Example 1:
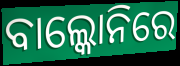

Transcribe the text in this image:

ବାଲ୍କୋନିରେ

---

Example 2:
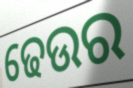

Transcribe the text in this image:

ଢେଉର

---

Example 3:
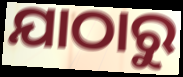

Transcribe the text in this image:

ଯାଠାରୁ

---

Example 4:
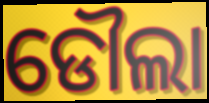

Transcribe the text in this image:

ଡୌଲା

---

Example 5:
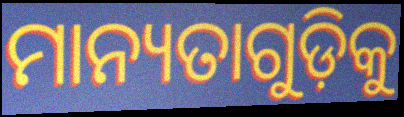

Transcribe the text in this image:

ମାନ୍ୟତାଗୁଡ଼ିକୁ